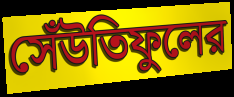
সেঁউতিফুলের